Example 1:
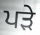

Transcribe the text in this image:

ਪੜੇ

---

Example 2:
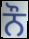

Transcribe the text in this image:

ਨੌ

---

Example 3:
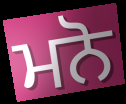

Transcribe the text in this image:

ਮਨੋ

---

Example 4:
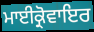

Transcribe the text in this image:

ਮਾਈਕ੍ਰੋਵਾਇਰ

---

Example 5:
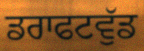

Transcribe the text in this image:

ਡਰਾਫਟਵੁੱਡ